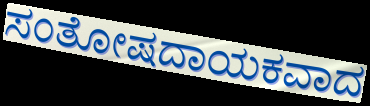
ಸಂತೋಷದಾಯಕವಾದ